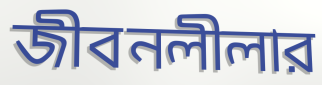
জীবনলীলার